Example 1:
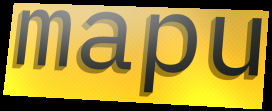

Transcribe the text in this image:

mapu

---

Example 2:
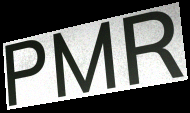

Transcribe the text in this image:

PMR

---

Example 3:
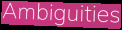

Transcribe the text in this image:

Ambiguities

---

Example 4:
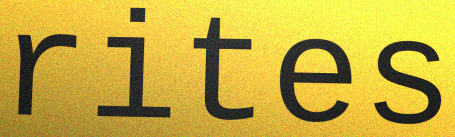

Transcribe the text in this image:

rites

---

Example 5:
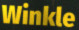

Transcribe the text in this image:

Winkle